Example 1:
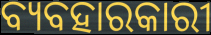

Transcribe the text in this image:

ବ୍ୟବହାରକାରୀ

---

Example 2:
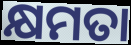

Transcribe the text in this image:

କ୍ଷମତା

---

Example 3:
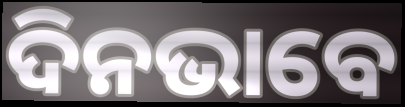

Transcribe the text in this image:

ଦିନଭାବେ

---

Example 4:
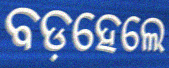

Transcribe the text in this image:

ବଡ଼ହେଲେ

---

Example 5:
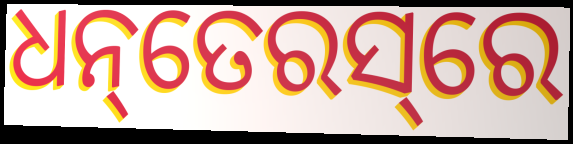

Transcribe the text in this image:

ଧନ୍‌ତେରସ୍‌ରେ